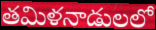
తమిళనాడులలో